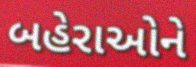
બહેરાઓને